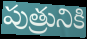
పుత్రునికి